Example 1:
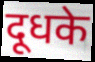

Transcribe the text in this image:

दूधके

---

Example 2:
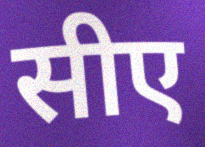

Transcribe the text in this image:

सीए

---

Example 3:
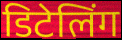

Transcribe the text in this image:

डिटेलिंग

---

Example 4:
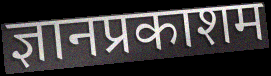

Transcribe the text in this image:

ज्ञानप्रकाशम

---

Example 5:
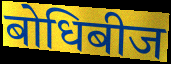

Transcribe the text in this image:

बोधिबीज